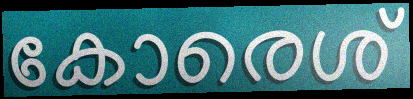
കോരെശ്